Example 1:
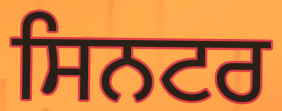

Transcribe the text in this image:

ਸਿਨਟਰ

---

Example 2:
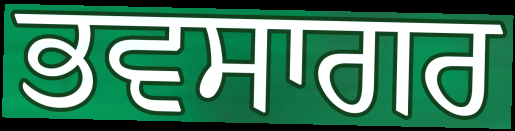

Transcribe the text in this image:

ਭਵਸਾਗਰ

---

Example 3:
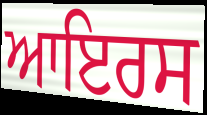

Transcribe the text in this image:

ਆਇਰਸ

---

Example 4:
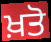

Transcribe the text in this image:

ਖ਼ਤੋ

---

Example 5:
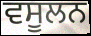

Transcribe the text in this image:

ਵਸੂਲਨ